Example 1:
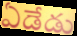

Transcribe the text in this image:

ఏడేడు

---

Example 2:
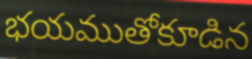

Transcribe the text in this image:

భయముతోకూడిన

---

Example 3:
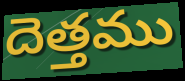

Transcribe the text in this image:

దెత్తము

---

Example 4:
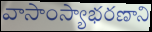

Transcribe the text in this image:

వాసాంస్యాభరణాని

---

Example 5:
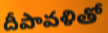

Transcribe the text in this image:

దీపావళితో